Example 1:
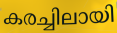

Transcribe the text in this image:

കരച്ചിലായി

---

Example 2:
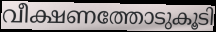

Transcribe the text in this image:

വീക്ഷണത്തോടുകൂടി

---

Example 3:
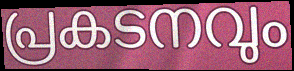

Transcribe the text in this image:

പ്രകടനവും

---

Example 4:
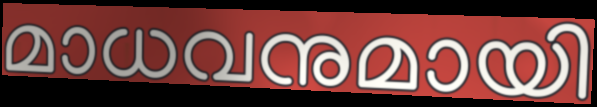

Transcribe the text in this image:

മാധവനുമായി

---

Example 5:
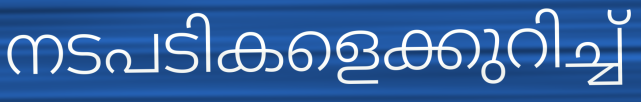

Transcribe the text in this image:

നടപടികളെക്കുറിച്ച്